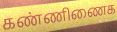
கண்ணிணைக